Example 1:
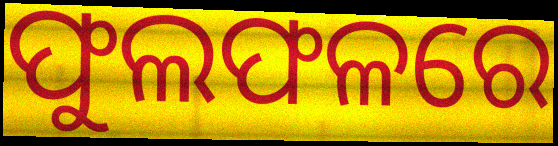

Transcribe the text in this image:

ଫୁଲଫଳରେ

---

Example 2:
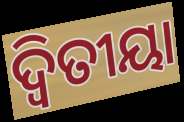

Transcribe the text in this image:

ଦ୍ୱିତୀୟା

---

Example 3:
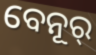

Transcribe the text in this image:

ବେନୂର୍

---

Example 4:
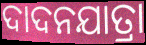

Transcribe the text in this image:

ଦାଦନଯାତ୍ରା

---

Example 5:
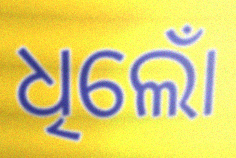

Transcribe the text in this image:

ଧିଲୋଁ